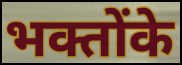
भक्तोंके